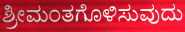
ಶ್ರೀಮಂತಗೊಳಿಸುವುದು